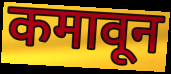
कमावून